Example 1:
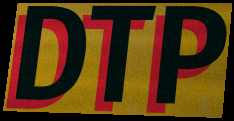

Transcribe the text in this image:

DTP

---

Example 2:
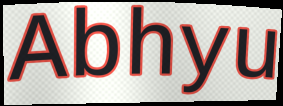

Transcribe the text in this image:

Abhyu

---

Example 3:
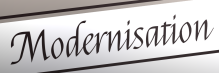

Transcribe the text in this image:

Modernisation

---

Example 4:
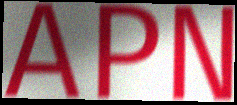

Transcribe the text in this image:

APN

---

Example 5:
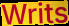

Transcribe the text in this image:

Writs